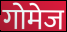
गोमेज